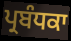
ਪ੍ਰਬੰਧਕਾ